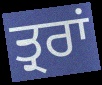
ਤ੍ਰਰਾਂ